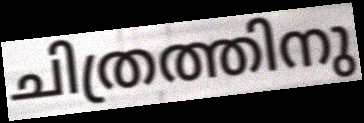
ചിത്രത്തിനു